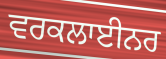
ਵਰਕਲਾਈਨਰ